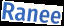
Ranee